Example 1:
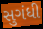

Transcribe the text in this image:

સુગંધી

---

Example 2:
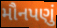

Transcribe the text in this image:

મૌનપણું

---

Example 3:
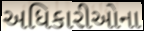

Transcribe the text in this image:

અધિકારીઓના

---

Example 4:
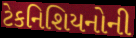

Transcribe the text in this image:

ટેકનિશિયનોની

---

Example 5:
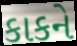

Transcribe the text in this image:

કાકને